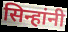
सिन्हांनी